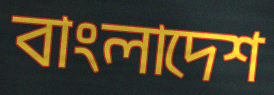
বাংলাদেশ